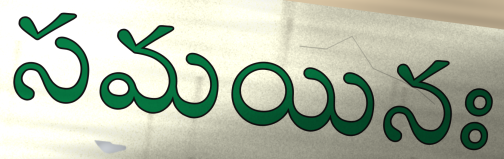
సమయినః